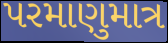
પરમાણુમાત્ર